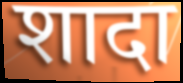
शादा